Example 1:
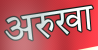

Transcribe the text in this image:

अरुखा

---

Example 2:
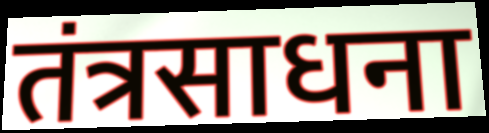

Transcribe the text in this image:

तंत्रसाधना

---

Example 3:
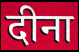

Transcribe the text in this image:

दीना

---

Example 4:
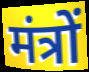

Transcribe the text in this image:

मंत्रों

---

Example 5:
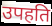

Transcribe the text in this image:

उपहति